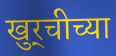
खुर्चीच्या